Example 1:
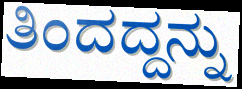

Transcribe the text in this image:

ತಿಂದದ್ದನ್ನು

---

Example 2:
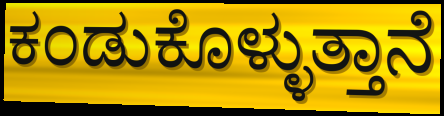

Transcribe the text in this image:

ಕಂಡುಕೊಳ್ಳುತ್ತಾನೆ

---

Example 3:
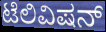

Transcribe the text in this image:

ಟೆಲಿವಿಷನ್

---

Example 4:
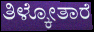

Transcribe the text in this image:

ತಿಳ್ಕೋತಾರೆ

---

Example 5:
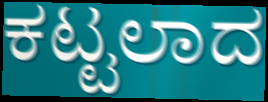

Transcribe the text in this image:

ಕಟ್ಟಲಾದ